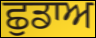
ਛੁਡਾਅ